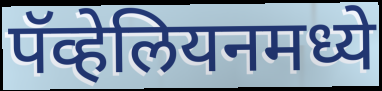
पॅव्हेलियनमध्ये